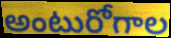
అంటురోగాల